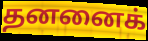
தனனைக்